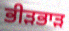
ਭੀੜਭਾੜ